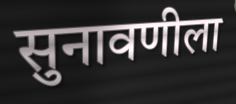
सुनावणीला